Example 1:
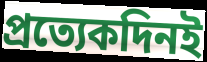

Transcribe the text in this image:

প্রত্যেকদিনই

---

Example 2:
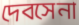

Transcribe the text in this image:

দেবসেনা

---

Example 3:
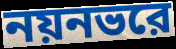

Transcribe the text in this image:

নয়নভরে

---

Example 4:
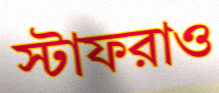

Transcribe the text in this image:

স্টাফরাও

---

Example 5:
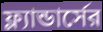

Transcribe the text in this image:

ফ্ল্যান্ডার্সের